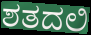
ಶತದಲಿ